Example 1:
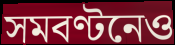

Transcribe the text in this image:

সমবণ্টনেও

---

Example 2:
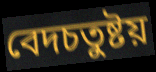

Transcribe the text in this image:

বেদচতুষ্টয়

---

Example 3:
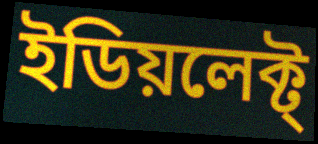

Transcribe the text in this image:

ইডিয়লেক্ট্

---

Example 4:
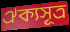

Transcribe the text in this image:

ঐক্যসূত্র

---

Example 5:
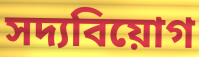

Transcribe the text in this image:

সদ্যবিয়োগ